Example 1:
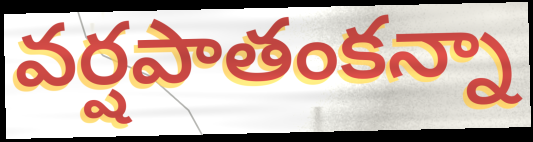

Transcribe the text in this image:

వర్షపాతంకన్నా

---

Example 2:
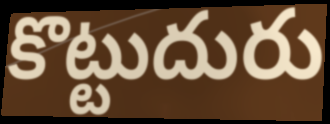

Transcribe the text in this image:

కొట్టుదురు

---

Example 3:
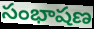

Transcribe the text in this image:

సంభాషణ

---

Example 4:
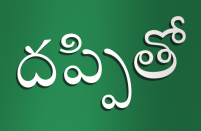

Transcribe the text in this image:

దప్పితో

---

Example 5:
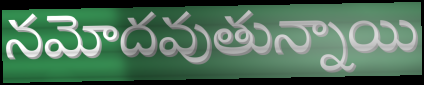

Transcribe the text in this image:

నమోదవుతున్నాయి